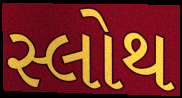
સ્લોથ